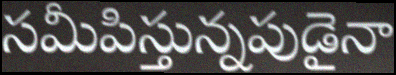
సమీపిస్తున్నపుడైనా